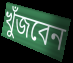
খুঁজবেন